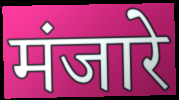
मंजारे